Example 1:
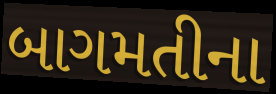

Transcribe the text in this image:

બાગમતીના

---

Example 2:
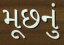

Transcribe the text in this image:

મૂછનું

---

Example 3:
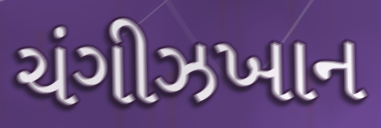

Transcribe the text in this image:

ચંગીઝખાન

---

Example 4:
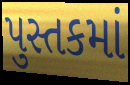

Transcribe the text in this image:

પુસ્તકમાં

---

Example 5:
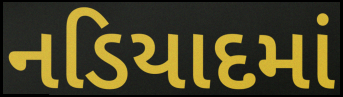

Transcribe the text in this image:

નડિયાદમાં